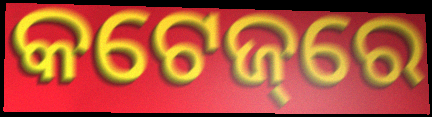
କଟେଜ୍‌ରେ